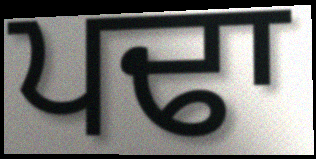
ਪਢਾ